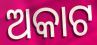
ଅକାଟ